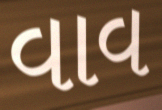
વાવ